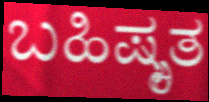
ಬಹಿಷ್ಕೃತ